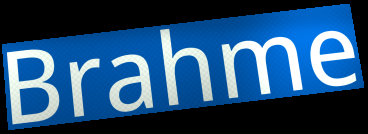
Brahme